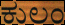
ಕುಲಂ